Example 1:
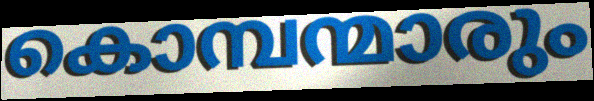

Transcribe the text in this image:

കൊമ്പന്മാരും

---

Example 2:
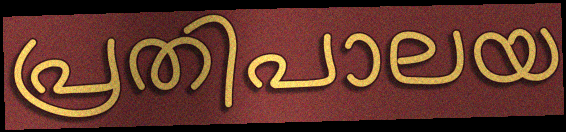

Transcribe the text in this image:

പ്രതിപാലയ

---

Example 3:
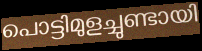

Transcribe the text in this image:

പൊട്ടിമുളച്ചുണ്ടായി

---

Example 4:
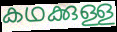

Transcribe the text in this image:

കഥക്കുള്ള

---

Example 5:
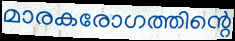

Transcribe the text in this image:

മാരകരോഗത്തിന്റെ